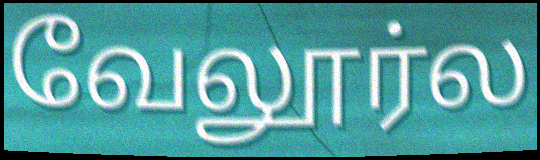
வேலூர்ல